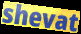
shevat